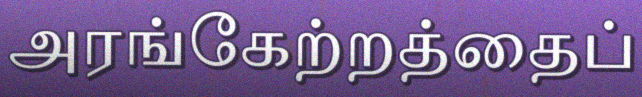
அரங்கேற்றத்தைப்